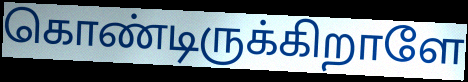
கொண்டிருக்கிறாளே